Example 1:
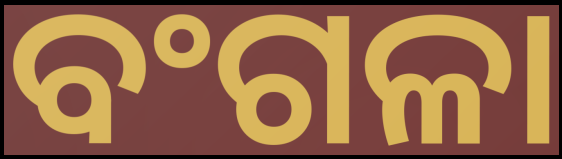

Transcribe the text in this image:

ବଂଗଳା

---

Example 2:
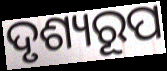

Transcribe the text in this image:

ଦୃଶ୍ୟରୂପ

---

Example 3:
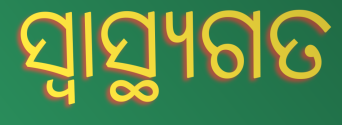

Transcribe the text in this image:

ସ୍ବାସ୍ଥ୍ୟଗତ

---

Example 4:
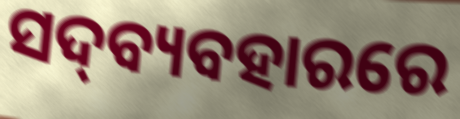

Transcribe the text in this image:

ସଦ୍‍ବ୍ୟବହାରରେ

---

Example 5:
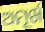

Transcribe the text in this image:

ଅମୂର୍ଖ